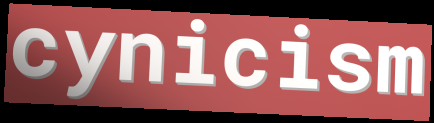
cynicism